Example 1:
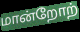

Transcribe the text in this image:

மான்றோற்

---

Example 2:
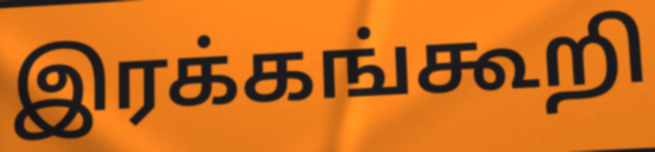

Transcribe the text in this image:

இரக்கங்கூறி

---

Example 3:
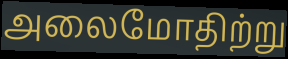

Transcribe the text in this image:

அலைமோதிற்று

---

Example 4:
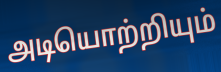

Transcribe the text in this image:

அடியொற்றியும்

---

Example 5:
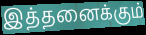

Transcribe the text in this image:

இத்தனைக்கும்